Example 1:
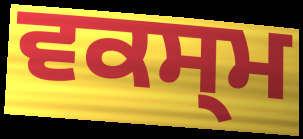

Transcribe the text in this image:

ਵਕਸ੍ਮ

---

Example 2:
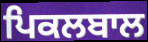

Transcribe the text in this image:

ਪਿਕਲਬਾਲ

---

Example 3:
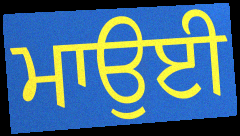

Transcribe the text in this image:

ਮਾਉਈ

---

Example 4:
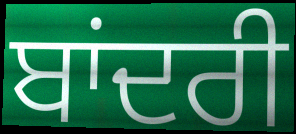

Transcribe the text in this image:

ਬਾਂਦਰੀ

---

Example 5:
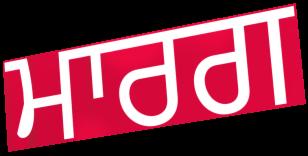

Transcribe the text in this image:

ਮਾਰਗ